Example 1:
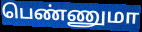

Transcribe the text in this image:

பெண்ணுமா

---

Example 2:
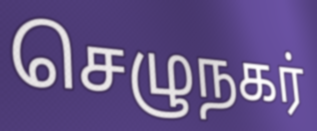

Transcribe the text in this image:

செழுநகர்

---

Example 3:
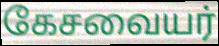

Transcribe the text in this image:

கேசவையர்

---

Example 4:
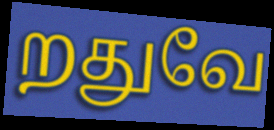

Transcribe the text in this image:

றதுவே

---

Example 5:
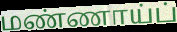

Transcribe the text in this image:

மண்ணாய்ப்